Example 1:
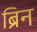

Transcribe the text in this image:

ब्रिन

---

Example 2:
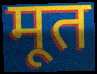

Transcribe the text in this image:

मूत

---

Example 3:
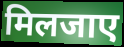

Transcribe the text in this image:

मिलजाए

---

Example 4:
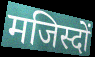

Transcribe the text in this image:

मजिस्दों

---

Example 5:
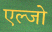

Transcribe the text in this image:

एल्जो